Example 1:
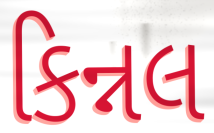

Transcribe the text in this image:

કિન્નલ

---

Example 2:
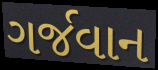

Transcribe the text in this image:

ગર્જવાન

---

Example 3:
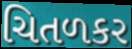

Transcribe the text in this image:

ચિતળકર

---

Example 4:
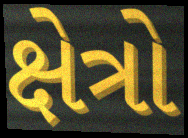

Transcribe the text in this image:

ક્ષેત્રો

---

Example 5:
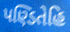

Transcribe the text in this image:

પણ્ડિતેહિ